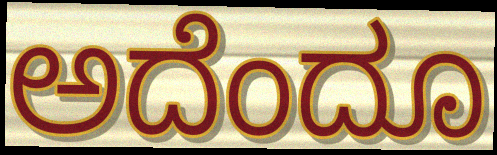
ಅದೆಂದೂ